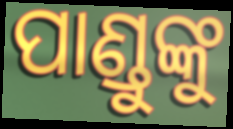
ପାଣ୍ଡୁଙ୍କୁ